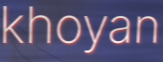
khoyan